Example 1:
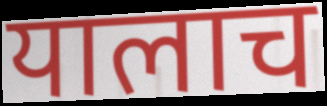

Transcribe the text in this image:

यालाच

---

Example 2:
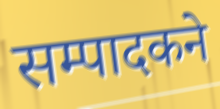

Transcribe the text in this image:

सम्पादकने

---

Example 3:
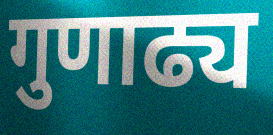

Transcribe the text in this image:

गुणाढ्य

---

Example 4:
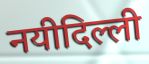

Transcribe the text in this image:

नयीदिल्ली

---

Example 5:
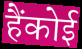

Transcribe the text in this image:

हैंकोई